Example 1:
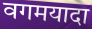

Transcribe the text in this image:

वगमयादा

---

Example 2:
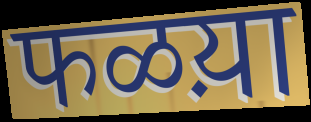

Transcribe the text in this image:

फळय़ा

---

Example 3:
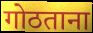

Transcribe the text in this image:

गोठताना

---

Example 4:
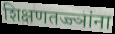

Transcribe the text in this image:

शिक्षणतज्ज्ञांना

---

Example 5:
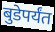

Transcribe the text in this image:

बुडेपर्यंत